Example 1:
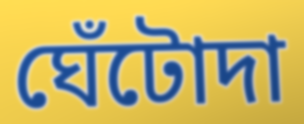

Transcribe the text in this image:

ঘেঁটোদা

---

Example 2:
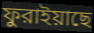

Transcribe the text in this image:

ফুরাইয়াছে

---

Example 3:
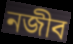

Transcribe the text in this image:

নজীব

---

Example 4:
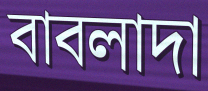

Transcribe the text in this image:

বাবলাদা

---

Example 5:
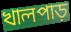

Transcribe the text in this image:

খালপাড়